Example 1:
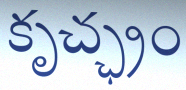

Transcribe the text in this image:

కృచ్ఛ్రం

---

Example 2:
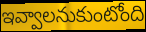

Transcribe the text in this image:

ఇవ్వాలనుకుంటోంది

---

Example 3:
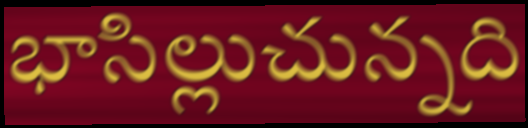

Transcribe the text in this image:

భాసిల్లుచున్నది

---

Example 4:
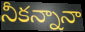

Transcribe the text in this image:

నీకన్నానా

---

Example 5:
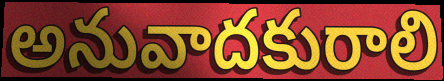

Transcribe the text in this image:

అనువాదకురాలి